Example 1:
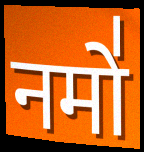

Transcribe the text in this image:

नमो॑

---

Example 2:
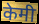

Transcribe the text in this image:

केमी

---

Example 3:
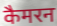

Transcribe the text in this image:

कैमरन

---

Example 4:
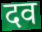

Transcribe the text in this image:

दव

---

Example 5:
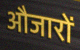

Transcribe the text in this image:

औजारों